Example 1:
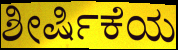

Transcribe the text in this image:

ಶೀರ್ಷಿಕೆಯ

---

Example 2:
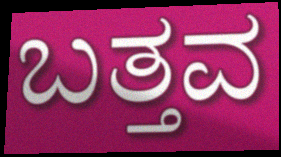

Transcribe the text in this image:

ಬತ್ತವ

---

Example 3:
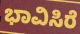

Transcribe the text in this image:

ಭಾವಿಸಿರೆ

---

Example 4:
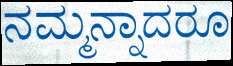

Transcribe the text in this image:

ನಮ್ಮನ್ನಾದರೂ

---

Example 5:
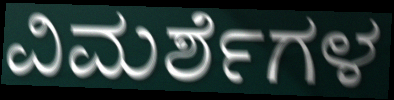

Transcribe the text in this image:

ವಿಮರ್ಶೆಗಳ